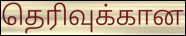
தெரிவுக்கான